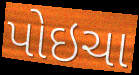
પોઇચા